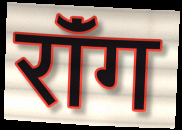
रॉंग